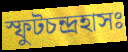
স্ফুটচন্দ্রহাসঃ